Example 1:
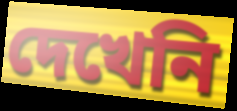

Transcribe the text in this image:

দেখেনি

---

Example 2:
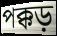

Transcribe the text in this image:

পক্কড়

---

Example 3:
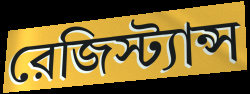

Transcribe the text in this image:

রেজিস্ট্যান্স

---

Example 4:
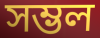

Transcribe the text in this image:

সম্ভল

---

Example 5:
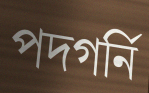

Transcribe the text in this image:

পদগর্নি